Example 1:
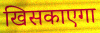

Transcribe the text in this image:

खिसकाएगा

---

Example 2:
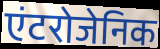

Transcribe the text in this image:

एंटरोजेनिक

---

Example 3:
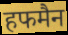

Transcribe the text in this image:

हफमैन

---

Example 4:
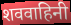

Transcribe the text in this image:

शववाहिनी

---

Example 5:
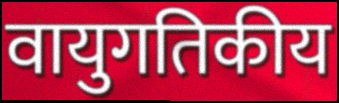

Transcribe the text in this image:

वायुगतिकीय